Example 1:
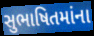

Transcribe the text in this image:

સુભાષિતમાંના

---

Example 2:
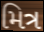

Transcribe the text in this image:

મિત્ર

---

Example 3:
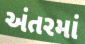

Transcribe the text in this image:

અંતરમાં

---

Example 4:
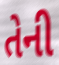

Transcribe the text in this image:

તેની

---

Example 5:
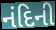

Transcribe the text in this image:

નંદિની